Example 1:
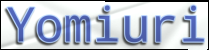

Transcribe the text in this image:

Yomiuri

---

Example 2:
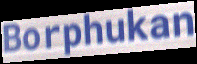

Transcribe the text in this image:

Borphukan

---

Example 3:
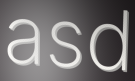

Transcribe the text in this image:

asd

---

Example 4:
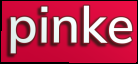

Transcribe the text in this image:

pinke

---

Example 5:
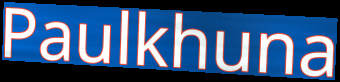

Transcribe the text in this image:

Paulkhuna